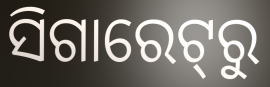
ସିଗାରେଟ୍‌ରୁ